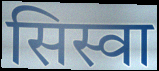
सिस्वा